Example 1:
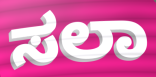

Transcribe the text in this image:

ಸಲಾ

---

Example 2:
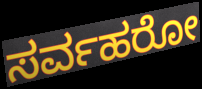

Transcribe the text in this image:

ಸರ್ವಹರೋ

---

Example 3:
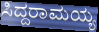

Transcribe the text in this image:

ಸಿದ್ದರಾಮಯ್ಯ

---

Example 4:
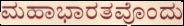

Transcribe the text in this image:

ಮಹಾಭಾರತವೊಂದು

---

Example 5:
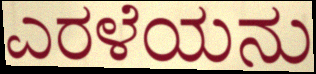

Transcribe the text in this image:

ಎರಳೆಯನು